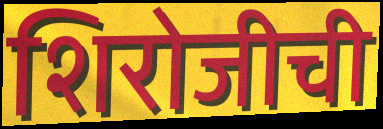
शिरोजीची